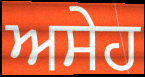
ਅਸੇਹ